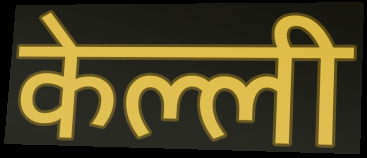
केल्ली